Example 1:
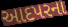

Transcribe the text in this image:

આદપરના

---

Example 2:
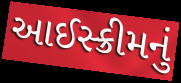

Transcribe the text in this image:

આઈસ્ક્રીમનું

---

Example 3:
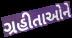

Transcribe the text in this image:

ગ્રહીતાઓને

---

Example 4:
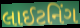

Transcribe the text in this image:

લાઈટનિંગ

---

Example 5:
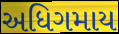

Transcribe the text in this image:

અધિગમાય